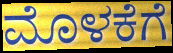
ಮೊಳಕೆಗೆ